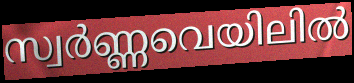
സ്വർണ്ണവെയിലിൽ